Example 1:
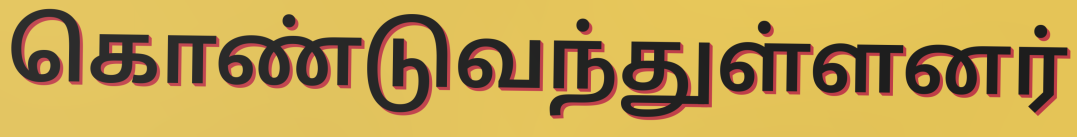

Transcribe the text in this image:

கொண்டுவந்துள்ளனர்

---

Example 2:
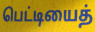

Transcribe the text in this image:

பெட்டியைத்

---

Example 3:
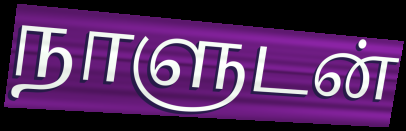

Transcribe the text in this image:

நாளுடன்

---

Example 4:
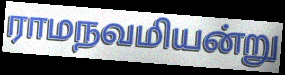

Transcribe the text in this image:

ராமநவமியன்று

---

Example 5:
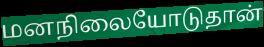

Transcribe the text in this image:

மனநிலையோடுதான்